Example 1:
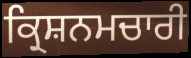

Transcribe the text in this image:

ਕ੍ਰਿਸ਼ਨਮਚਾਰੀ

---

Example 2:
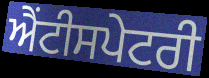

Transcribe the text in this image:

ਐਂਟੀਸਪੇਟਰੀ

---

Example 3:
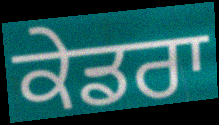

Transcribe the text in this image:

ਕੇਡਰਾ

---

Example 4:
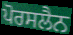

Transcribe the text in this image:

ਪੋਰਸਲੈਨ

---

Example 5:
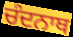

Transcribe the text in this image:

ਚੰਦਨਾਥ